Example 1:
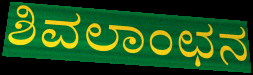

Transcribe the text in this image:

ಶಿವಲಾಂಛನ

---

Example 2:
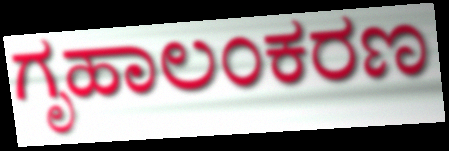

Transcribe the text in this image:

ಗೃಹಾಲಂಕರಣ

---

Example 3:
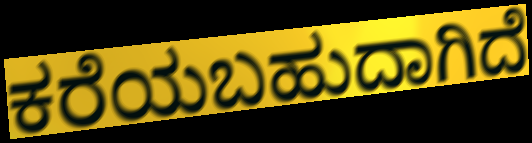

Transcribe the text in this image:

ಕರೆಯಬಹುದಾಗಿದೆ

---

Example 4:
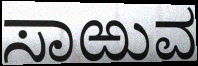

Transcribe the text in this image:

ಸಾಱುವ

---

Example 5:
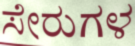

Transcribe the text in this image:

ಸೇರುಗಳ